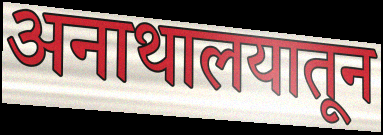
अनाथालयातून